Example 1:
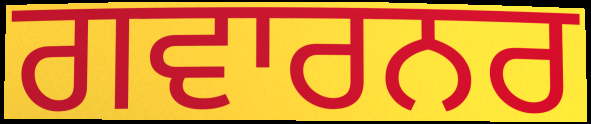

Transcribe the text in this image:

ਗਵਾਰਨਰ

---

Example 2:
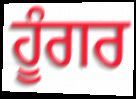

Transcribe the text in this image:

ਹੂੰਗਰ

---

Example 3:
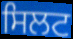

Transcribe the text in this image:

ਸਿਲਟ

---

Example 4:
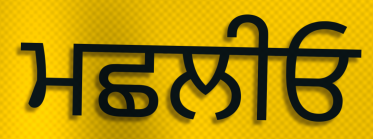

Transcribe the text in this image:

ਮਛਲੀਓ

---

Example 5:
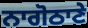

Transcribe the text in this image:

ਨਾਗੋਠਾਣੇ